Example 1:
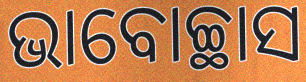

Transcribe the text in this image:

ଭାବୋଚ୍ଛାସ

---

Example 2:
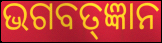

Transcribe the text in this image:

ଭଗବତ୍‌ଜ୍ଞାନ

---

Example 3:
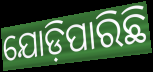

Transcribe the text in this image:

ଯୋଡ଼ିପାରିଛି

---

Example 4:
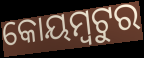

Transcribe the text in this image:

କୋୟମ୍ବଟୁର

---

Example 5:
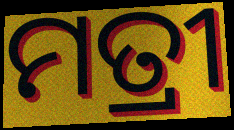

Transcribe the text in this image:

ମତ୍ରୀ